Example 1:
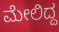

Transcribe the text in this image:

ಮೇಲಿದ್ದ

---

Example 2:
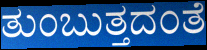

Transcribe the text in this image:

ತುಂಬುತ್ತದಂತೆ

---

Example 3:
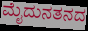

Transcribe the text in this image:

ಮೈದುನತನದ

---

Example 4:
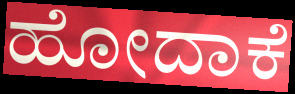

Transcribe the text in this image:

ಹೋದಾಕೆ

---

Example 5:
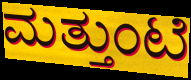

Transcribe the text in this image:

ಮತ್ತುಂಟೆ